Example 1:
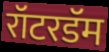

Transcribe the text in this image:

रॉटरडॅम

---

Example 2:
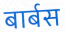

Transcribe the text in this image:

बार्बस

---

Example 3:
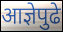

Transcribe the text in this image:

आज्ञेपुढे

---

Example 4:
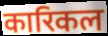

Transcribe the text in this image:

कारिकल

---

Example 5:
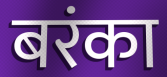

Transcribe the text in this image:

बरंका